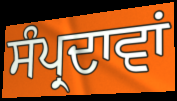
ਸੰਪ੍ਰਦਾਵਾਂ